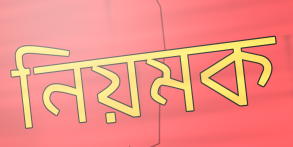
নিয়মক